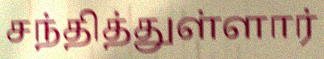
சந்தித்துள்ளார்